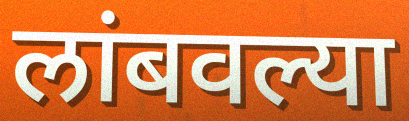
लांबवल्या